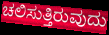
ಚಲಿಸುತ್ತಿರುವುದು